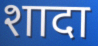
शादा